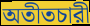
অতীতচারী